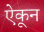
ऐकून